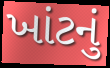
ખાંટનું